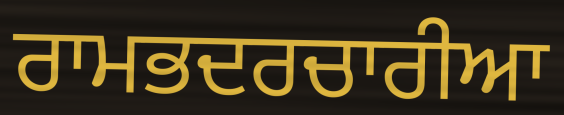
ਰਾਮਭਦਰਚਾਰੀਆ